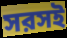
সরসই